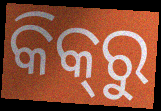
କିକ୍‍ରୁ